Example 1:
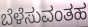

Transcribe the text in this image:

ಬೆಳೆಸುವಂತಹ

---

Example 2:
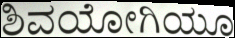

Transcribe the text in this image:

ಶಿವಯೋಗಿಯೂ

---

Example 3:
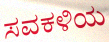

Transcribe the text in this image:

ಸವಕಳಿಯ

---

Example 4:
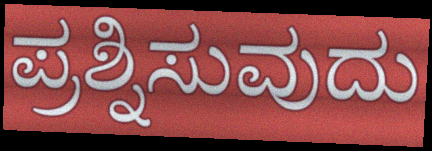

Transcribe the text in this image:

ಪ್ರಶ್ನಿಸುವುದು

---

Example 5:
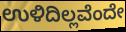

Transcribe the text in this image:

ಉಳಿದಿಲ್ಲವೆಂದೇ